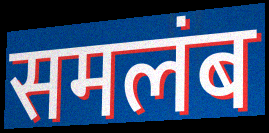
समलंब